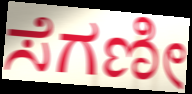
ಸೆಗಣೀ